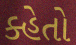
ક્હેતો